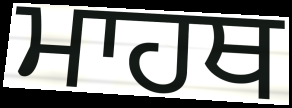
ਮਾਹਥ